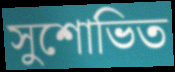
সুশোভিত